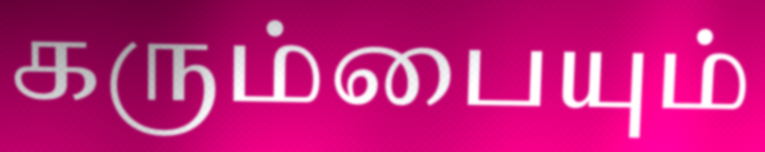
கரும்பையும்